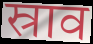
स्राव